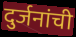
दुर्जनांची